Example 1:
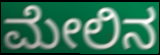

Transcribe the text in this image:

ಮೇಲಿನ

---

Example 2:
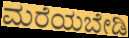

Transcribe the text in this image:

ಮರೆಯಬೇಡಿ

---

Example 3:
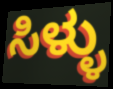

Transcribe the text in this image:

ಸಿಳ್ಳು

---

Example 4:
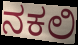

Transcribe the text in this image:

ನಕಲಿ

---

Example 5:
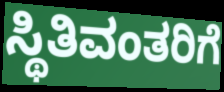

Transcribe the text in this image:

ಸ್ಥಿತಿವಂತರಿಗೆ